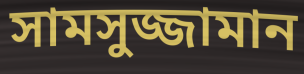
সামসুজ্জামান